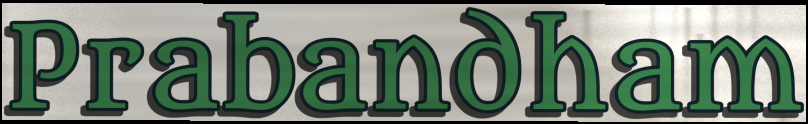
Prabandham